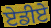
ਏਡੀਏ